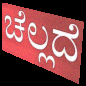
ಚೆಲ್ಲದೆ